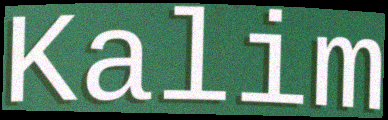
Kalim